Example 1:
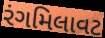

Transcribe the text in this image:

રંગમિલાવટ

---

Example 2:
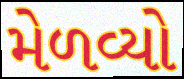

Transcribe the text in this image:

મેળવ્યો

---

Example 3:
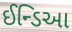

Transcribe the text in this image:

ઈન્ડિઆ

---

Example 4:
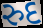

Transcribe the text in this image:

રુદ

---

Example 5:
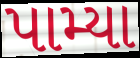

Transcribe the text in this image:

પામ્યા